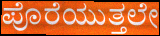
ಪೊರೆಯುತ್ತಲೇ